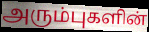
அரும்புகளின்